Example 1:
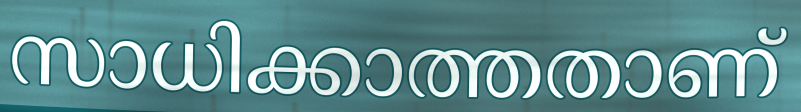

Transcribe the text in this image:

സാധിക്കാത്തതാണ്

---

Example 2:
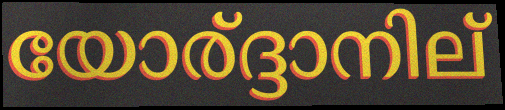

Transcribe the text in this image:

യോര്ദ്ദാനില്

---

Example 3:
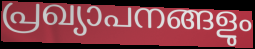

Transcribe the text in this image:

പ്രഖ്യാപനങ്ങളും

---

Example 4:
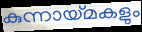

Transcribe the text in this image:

കുന്നായ്മകളും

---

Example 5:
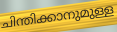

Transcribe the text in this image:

ചിന്തിക്കാനുമുള്ള